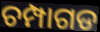
ଚମ୍ପାଗଡ